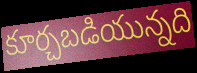
కూర్చబడియున్నది